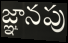
జ్ఞానపు